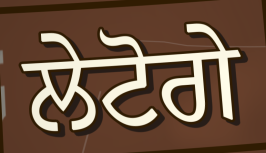
ਲੇਟੋਗੇ